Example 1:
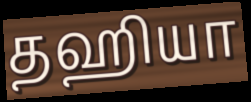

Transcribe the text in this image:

தஹியா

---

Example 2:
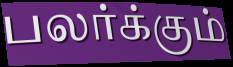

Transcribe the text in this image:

பலர்க்கும்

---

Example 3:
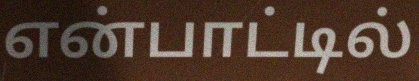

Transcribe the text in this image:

என்பாட்டில்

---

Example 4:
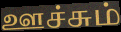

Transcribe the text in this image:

ஊச்சும்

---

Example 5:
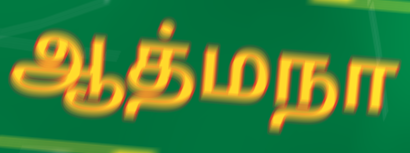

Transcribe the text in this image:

ஆத்மநா